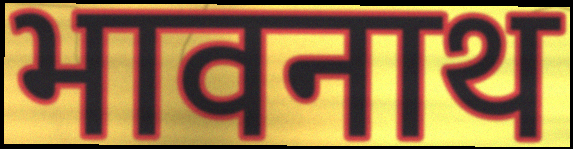
भावनाथ